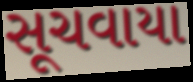
સૂચવાયા